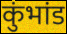
कुंभांड